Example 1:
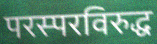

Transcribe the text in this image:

परस्परविरुद्ध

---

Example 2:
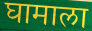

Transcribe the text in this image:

घामाला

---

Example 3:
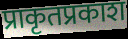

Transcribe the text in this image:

प्राकृतप्रकाश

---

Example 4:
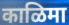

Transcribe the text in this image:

काळिमा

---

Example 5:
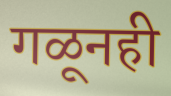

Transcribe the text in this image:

गळूनही